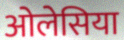
ओलेसिया